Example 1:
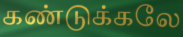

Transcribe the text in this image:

கண்டுக்கலே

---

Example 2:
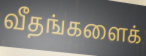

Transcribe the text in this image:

வீதங்களைக்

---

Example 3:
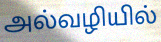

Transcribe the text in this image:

அல்வழியில்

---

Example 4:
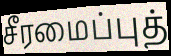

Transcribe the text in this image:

சீரமைப்புத்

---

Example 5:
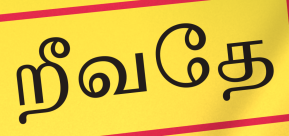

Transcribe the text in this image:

றீவதே